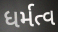
ધર્મત્વ